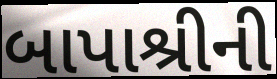
બાપાશ્રીની